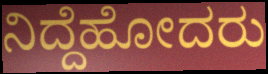
ನಿದ್ದೆಹೋದರು